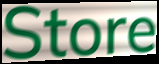
Store